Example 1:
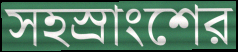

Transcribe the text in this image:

সহস্রাংশের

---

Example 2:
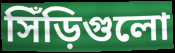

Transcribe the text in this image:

সিঁড়িগুলো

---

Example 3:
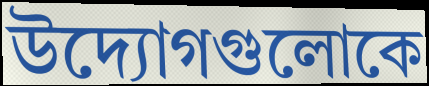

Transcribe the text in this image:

উদ্যোগগুলোকে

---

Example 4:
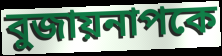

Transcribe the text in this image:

বুজায়নাপকে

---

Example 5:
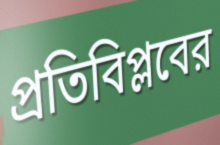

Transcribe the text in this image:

প্রতিবিপ্লবের